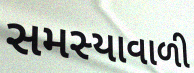
સમસ્યાવાળી